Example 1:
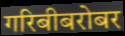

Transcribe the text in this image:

गरिबीबरोबर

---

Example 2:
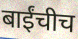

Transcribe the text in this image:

बाईंचीच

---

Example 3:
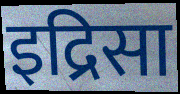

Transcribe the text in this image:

इद्रिसा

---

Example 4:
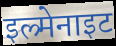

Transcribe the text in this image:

इल्मेनाइट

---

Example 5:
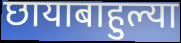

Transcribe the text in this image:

छायाबाहुल्या